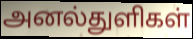
அனல்துளிகள்